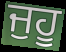
ਜੁਹੂ